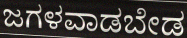
ಜಗಳವಾಡಬೇಡ